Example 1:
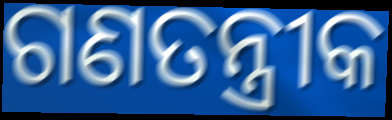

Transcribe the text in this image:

ଗଣତନ୍ତ୍ରୀକ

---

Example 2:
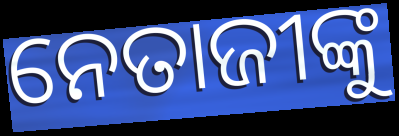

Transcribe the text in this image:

ନେତାଜୀଙ୍କୁ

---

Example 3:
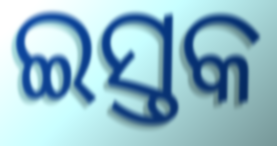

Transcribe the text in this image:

ଇସ୍ତକ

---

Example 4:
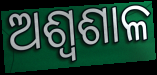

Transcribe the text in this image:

ଅଶ୍ୱଶାଳ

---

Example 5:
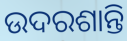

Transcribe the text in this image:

ଉଦରଶାନ୍ତି